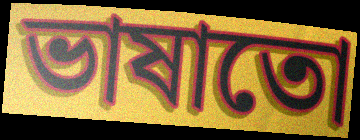
ভাষাতো